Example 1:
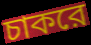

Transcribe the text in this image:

চাকরে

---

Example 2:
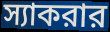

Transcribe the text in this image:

স্যাকরার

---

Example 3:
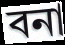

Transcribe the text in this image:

বনা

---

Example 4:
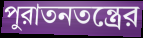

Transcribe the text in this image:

পুরাতনতন্ত্রের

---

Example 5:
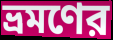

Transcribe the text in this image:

ভ্রমণের